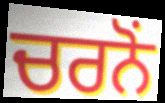
ਚਰਨੋਂ